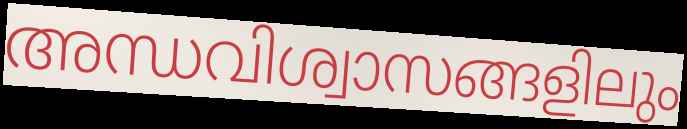
അന്ധവിശ്വാസങ്ങളിലും